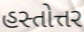
હસ્તોત્તર